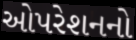
ઓપરેશનનો